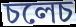
চলেচ